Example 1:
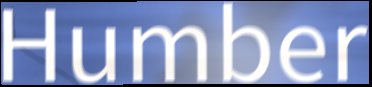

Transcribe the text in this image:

Humber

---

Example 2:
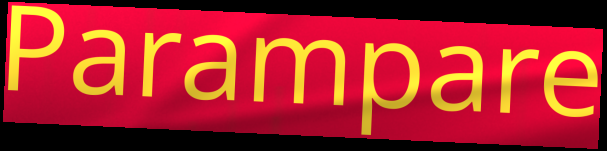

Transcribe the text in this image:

Parampare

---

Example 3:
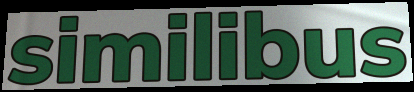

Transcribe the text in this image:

similibus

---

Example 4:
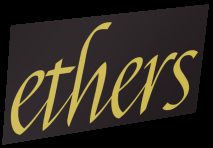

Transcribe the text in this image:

ethers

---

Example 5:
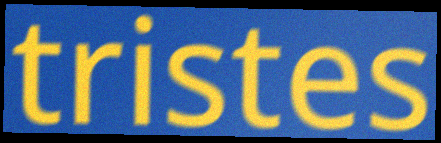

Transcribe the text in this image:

tristes